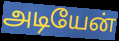
அடியேன்